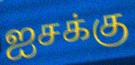
ஐசக்கு